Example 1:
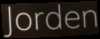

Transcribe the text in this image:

Jorden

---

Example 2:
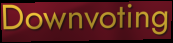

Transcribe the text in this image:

Downvoting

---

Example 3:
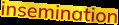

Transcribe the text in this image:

insemination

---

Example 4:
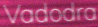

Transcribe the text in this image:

Vadodra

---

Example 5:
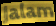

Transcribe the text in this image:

Jalam